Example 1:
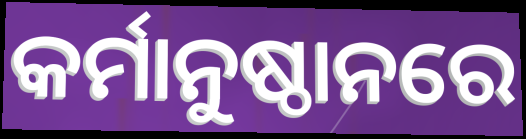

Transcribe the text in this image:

କର୍ମାନୁଷ୍ଠାନରେ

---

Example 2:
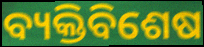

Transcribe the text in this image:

ବ୍ୟକ୍ତିବିଶେଷ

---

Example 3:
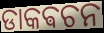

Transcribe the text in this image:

ଡାକଵଚନ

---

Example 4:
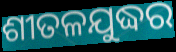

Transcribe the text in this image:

ଶୀତଳଯୁଦ୍ଧର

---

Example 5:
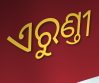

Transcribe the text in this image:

ଏରୁଣ୍ତୀ